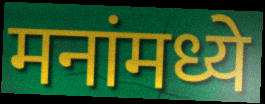
मनांमध्ये